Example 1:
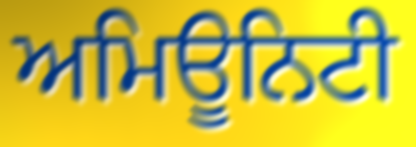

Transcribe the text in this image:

ਅਮਿਊਨਿਟੀ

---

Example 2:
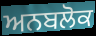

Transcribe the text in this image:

ਅਨਬਲੋਕ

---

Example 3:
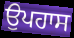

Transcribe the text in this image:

ਉਪਹਾਸ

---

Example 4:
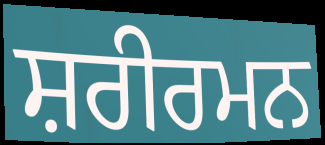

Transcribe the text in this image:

ਸ਼ਰੀਰਮਨ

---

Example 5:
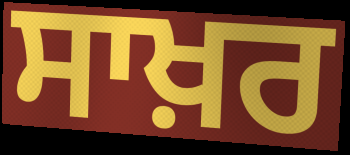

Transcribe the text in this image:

ਸਾਖ਼ਰ